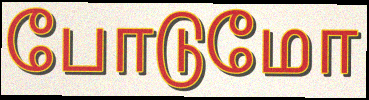
போடுமோ